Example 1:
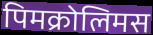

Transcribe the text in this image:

पिमक्रोलिमस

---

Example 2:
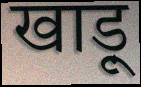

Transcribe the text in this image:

खाड़ू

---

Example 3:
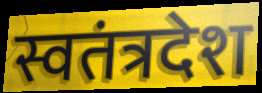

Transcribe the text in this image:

स्वतंत्रदेश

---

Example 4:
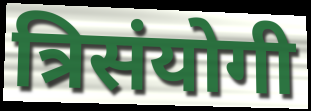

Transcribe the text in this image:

त्रिसंयोगी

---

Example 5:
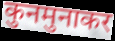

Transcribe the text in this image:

कुनमुनाकर